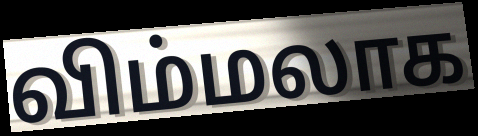
விம்மலாக